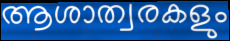
ആശാത്വരകളും